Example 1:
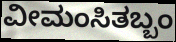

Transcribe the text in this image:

ವೀಮಂಸಿತಬ್ಬಂ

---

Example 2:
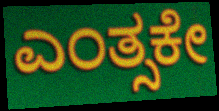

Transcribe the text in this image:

ಎಂತ್ಸಕೇ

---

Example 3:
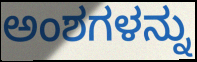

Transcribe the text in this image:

ಅಂಶಗಳನ್ನು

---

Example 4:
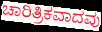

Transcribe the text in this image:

ಚಾರಿತ್ರಿಕವಾದವು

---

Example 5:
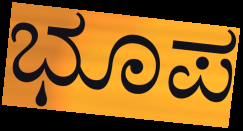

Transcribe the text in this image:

ಭೂಪ